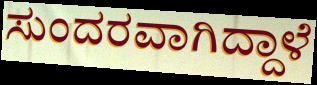
ಸುಂದರವಾಗಿದ್ದಾಳೆ